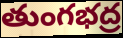
తుంగభద్ర